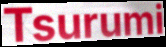
Tsurumi